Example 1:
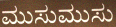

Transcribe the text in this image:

ಮುಸುಮುಸು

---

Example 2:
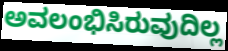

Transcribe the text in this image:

ಅವಲಂಭಿಸಿರುವುದಿಲ್ಲ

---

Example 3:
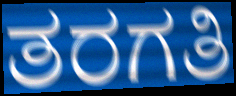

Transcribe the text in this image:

ತರಗತಿ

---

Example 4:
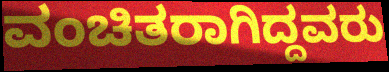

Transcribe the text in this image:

ವಂಚಿತರಾಗಿದ್ದವರು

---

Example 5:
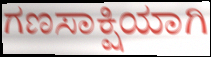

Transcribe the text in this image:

ಗಣಸಾಕ್ಷಿಯಾಗಿ